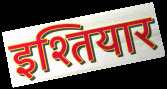
इश्तियार